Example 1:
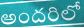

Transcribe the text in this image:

అందరిలో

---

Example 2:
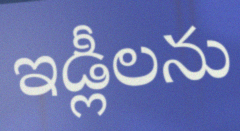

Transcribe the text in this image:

ఇడ్లీలను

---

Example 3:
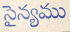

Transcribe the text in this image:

సైన్యము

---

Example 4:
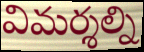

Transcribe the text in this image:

విమర్శల్ని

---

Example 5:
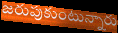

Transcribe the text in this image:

జరుపుకుంటున్నారు